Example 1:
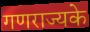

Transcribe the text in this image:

गणराज्यके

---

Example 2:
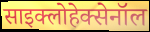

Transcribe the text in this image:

साइक्लोहेक्सेनॉल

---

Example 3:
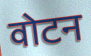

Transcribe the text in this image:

वोटन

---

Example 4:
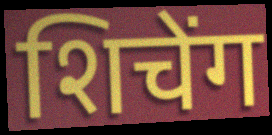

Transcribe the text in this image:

शिचेंग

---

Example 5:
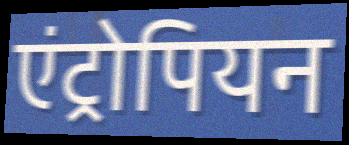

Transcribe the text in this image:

एंट्रोपियन